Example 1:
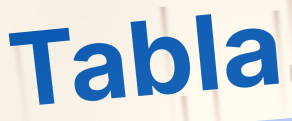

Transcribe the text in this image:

Tabla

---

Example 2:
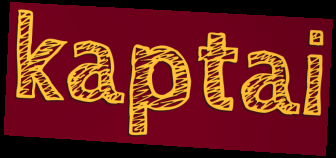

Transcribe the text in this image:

kaptai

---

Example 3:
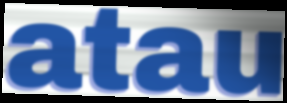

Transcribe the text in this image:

atau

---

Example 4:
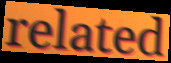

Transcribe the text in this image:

related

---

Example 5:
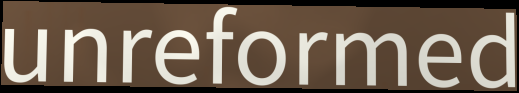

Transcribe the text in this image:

unreformed